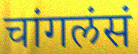
चांगलंसं